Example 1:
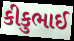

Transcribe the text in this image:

કીકુભાઈ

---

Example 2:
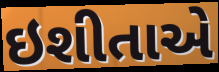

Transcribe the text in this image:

ઇશીતાએ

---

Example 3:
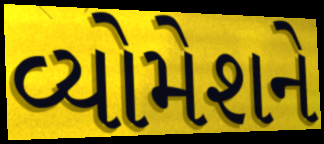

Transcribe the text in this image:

વ્યોમેશને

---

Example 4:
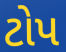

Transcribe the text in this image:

ટોપ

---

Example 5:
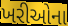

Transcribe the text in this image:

ખરીઓના